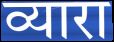
व्यारा